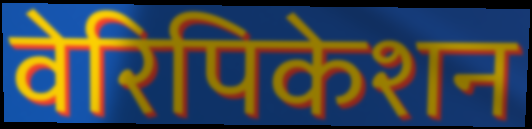
वेरिपिकेशन